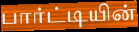
பார்ட்டியின்